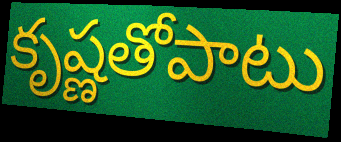
కృష్ణతోపాటు